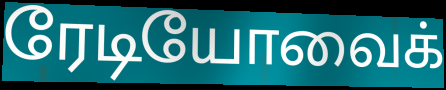
ரேடியோவைக்